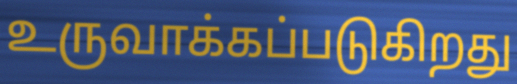
உருவாக்கப்படுகிறது